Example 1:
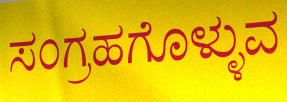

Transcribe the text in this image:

ಸಂಗ್ರಹಗೊಳ್ಳುವ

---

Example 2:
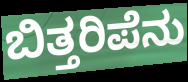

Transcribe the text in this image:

ಬಿತ್ತರಿಪೆನು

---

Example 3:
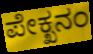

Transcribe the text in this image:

ಪೇಕ್ಖನಂ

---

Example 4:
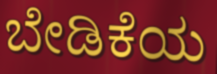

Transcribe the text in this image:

ಬೇಡಿಕೆಯ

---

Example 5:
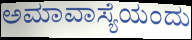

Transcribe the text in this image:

ಅಮಾವಾಸ್ಯೆಯಂದು